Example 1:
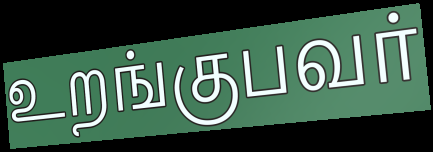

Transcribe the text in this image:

உறங்குபவர்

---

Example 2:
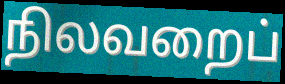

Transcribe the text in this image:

நிலவறைப்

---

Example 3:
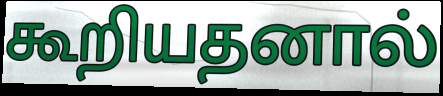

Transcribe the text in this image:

கூறியதனால்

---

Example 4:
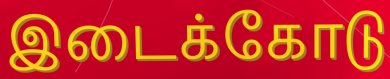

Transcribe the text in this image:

இடைக்கோடு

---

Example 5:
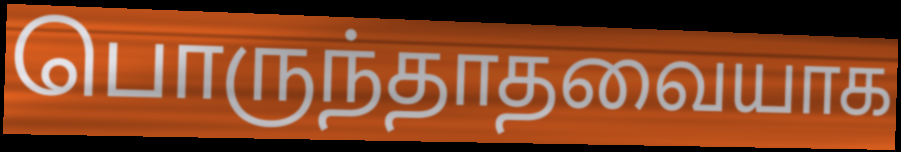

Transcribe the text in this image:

பொருந்தாதவையாக